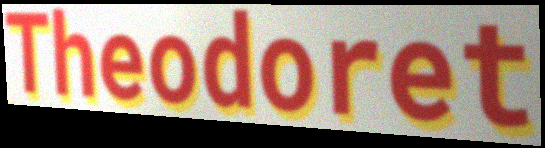
Theodoret